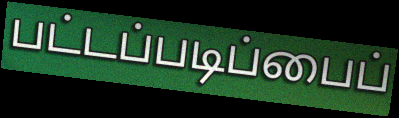
பட்டப்படிப்பைப்